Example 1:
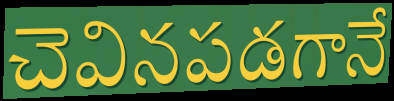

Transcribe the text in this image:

చెవినపడగానే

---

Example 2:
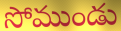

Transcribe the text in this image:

సోముండు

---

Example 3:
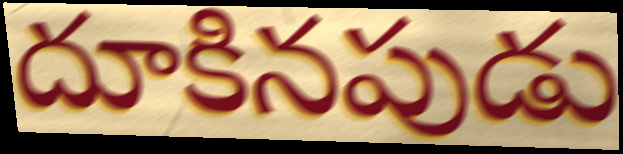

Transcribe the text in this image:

దూకినపుడు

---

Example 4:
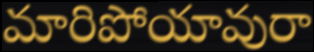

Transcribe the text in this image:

మారిపోయావురా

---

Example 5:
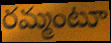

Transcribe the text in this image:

రమ్మంటూ